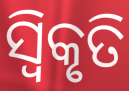
ସ୍ୱିକୃତି